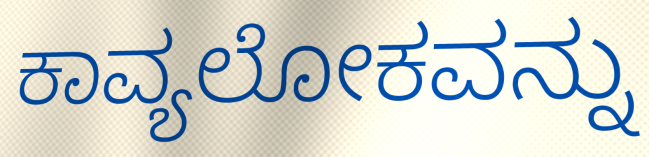
ಕಾವ್ಯಲೋಕವನ್ನು